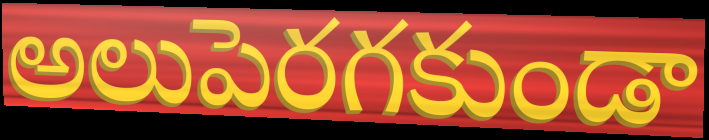
అలుపెరగకుండా